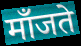
माँजते